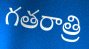
గతరాత్రి